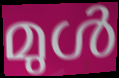
മുൾ